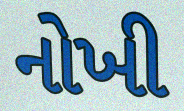
નોખી